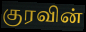
குரவின்